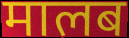
मालब